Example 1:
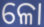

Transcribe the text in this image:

ଳୋ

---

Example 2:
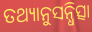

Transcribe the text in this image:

ତଥ୍ୟାନୁସନ୍ଧିତ୍ସା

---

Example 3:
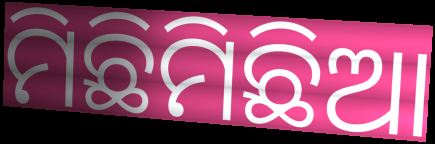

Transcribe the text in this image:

ମିଛିମିଛିଆ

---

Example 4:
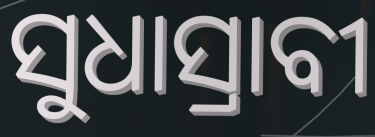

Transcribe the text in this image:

ସୁଧାସ୍ରାବୀ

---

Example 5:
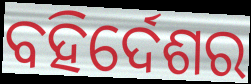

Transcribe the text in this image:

ବହିର୍ଦେଶର